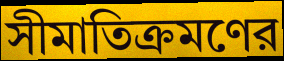
সীমাতিক্রমণের